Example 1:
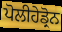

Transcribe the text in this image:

ਪੋਲੀਹੇਡ੍ਰੋਨ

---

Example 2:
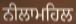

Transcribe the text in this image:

ਨੀਲਾਮਹਿਲ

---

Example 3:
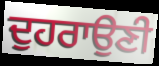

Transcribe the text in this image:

ਦੁਹਰਾਉਣੀ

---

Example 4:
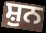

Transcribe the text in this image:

ਸ਼ੁਨ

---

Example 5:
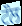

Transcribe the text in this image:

ਟੌਲ